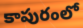
కాపురంలో